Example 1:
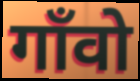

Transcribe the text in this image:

गाँवो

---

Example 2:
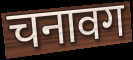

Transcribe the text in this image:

चनावग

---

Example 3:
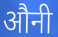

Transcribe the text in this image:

औनी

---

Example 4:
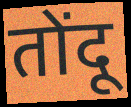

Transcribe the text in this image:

तोंदू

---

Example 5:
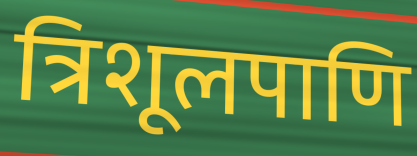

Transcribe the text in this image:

त्रिशूलपाणि